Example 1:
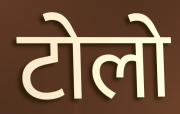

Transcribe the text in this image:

टोलो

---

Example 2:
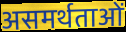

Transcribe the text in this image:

असमर्थताओं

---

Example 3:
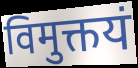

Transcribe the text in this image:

विमुक्तयं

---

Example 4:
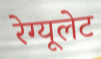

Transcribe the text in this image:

रेग्यूलेट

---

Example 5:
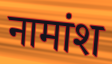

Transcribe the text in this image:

नामांश